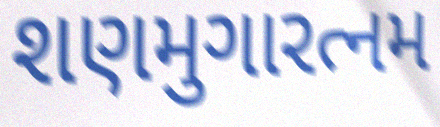
શણમુગારત્નમ